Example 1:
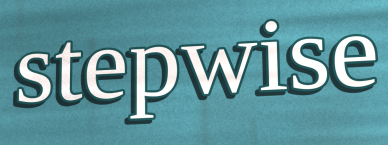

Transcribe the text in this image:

stepwise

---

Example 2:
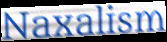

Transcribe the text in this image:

Naxalism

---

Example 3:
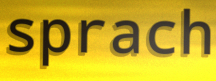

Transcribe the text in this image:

sprach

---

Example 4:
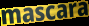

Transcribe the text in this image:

mascara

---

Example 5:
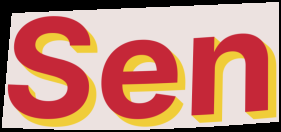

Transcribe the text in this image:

Sen